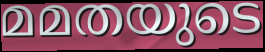
മമതയുടെ